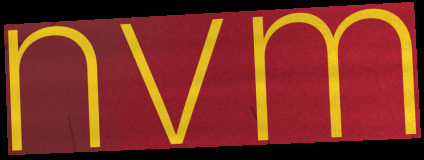
nvm